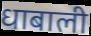
धाबाली